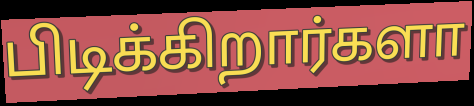
பிடிக்கிறார்களா